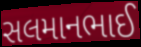
સલમાનભાઈ